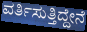
ವರ್ತಿಸುತ್ತಿದ್ದೇನೆ